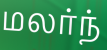
மலர்ந்